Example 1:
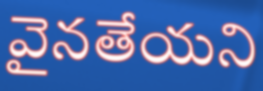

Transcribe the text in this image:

వైనతేయని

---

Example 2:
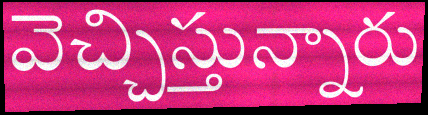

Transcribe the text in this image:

వెచ్చిస్తున్నారు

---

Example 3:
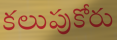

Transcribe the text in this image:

కలుపుకోరు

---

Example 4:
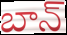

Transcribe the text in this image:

బాన్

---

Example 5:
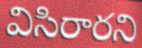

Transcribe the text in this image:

విసిరారని